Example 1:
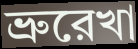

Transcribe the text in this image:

ভ্রুরেখা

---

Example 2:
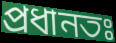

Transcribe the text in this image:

প্রধানতঃ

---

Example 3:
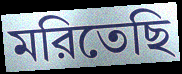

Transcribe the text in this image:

মরিতেছি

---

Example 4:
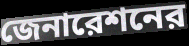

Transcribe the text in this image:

জেনারেশনের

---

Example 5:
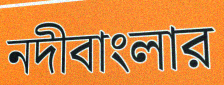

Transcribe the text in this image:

নদীবাংলার